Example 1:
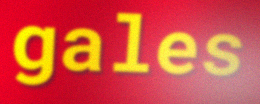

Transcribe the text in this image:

gales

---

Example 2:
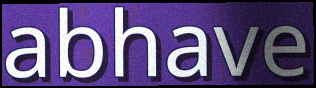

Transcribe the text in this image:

abhave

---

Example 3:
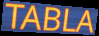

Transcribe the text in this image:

TABLA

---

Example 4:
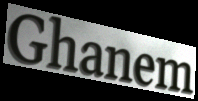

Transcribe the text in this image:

Ghanem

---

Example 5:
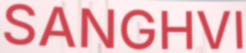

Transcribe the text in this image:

SANGHVI